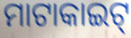
ମାଟାକାଇଟ୍